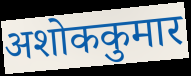
अशोककुमार